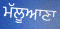
ਮੱਲੂਆਣਾ